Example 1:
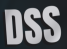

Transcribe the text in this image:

DSS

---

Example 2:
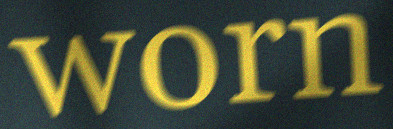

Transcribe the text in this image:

worn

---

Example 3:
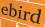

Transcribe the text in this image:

ebird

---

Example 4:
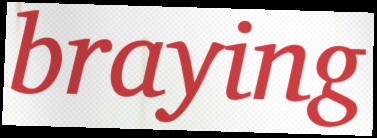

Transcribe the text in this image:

braying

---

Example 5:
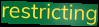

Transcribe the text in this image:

restricting